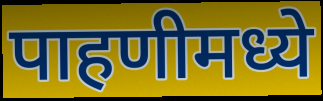
पाहणीमध्ये